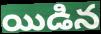
యిడిన